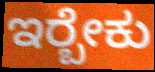
ಇರ‍್ಬೇಕು